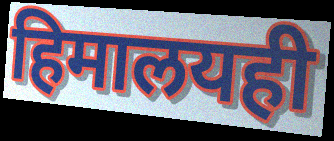
हिमालयही